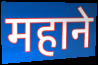
महाने